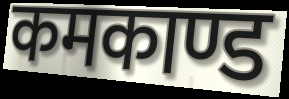
कमकाण्ड